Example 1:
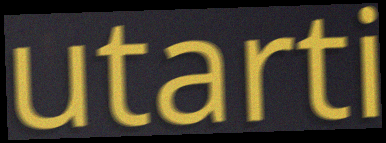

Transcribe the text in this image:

utarti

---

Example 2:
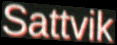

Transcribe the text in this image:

Sattvik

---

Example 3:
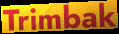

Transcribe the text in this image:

Trimbak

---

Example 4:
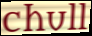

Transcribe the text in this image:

chull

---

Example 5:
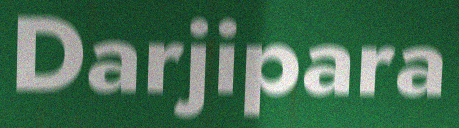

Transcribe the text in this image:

Darjipara